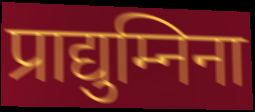
प्राद्युम्निना